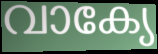
വാക്യേ